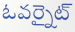
ఓవర్నైట్